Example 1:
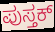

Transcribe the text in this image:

ಪುಸ್ತಕ್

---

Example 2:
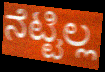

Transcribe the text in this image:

ನೆಟ್ಟಿಲ್ಲ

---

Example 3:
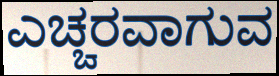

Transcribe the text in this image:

ಎಚ್ಚರವಾಗುವ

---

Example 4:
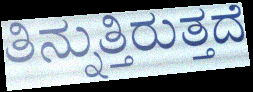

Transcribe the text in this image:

ತಿನ್ನುತ್ತಿರುತ್ತದೆ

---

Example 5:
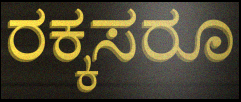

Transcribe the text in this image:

ರಕ್ಕಸರೂ